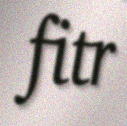
fitr